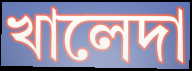
খালেদা